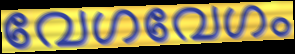
വേഗവേഗം